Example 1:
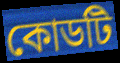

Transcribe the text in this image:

কোডটি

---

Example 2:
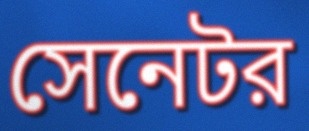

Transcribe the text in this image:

সেনেটর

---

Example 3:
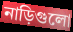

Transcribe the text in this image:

নাড়িগুলো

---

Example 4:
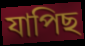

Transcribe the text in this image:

যাপিছ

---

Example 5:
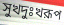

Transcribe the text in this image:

সুখদুঃখরূপ